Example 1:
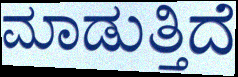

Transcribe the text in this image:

ಮಾಡುತ್ತಿದೆ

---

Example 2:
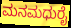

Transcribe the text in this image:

ಮನಮಧುರೈ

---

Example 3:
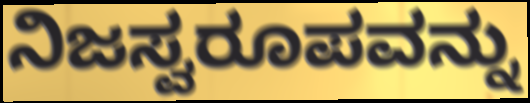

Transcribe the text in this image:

ನಿಜಸ್ವರೂಪವನ್ನು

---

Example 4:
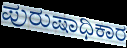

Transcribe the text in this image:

ಪುರುಷಾಧಿಕಾರ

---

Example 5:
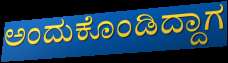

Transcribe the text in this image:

ಅಂದುಕೊಂಡಿದ್ದಾಗ